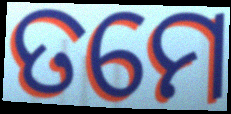
ତମେ